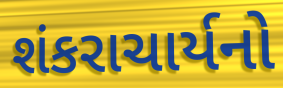
શંકરાચાર્યનો